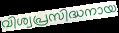
വിശ്വപ്രസിദ്ധനായ